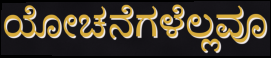
ಯೋಚನೆಗಳೆಲ್ಲವೂ